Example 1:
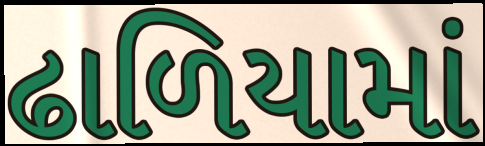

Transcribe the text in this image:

ઢાળિયામાં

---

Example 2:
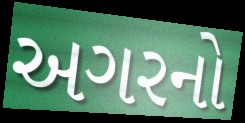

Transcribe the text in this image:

અગરનો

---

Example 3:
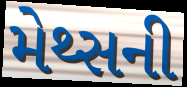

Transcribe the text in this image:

મેથ્સની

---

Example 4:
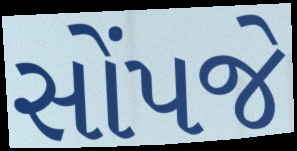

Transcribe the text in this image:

સોંપજે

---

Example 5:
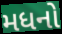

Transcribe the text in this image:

મધનો